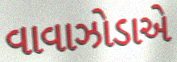
વાવાઝોડાએ